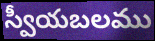
స్వీయబలము